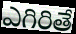
ఎగిరితే